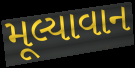
મૂલ્યાવાન